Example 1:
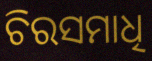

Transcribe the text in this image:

ଚିରସମାଧି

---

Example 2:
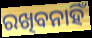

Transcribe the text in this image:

ରଖିବନାହିଁ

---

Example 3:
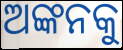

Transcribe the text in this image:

ଅଙ୍କନକୁ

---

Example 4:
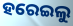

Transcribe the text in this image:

ହରେଇଲୁ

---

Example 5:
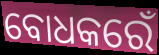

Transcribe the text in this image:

ବୋଧକରେଁ